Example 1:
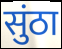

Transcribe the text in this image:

सुंठा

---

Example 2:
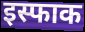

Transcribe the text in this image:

इस्फाक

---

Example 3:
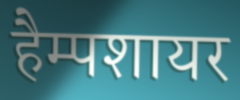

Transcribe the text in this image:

हैम्पशायर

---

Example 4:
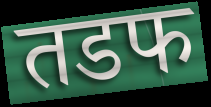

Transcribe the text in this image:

तडफ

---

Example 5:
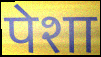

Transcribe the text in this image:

पेशा